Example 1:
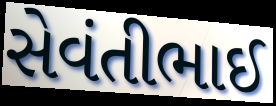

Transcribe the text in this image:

સેવંતીભાઈ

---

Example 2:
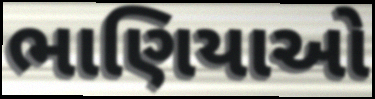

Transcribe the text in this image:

ભાણિયાઓ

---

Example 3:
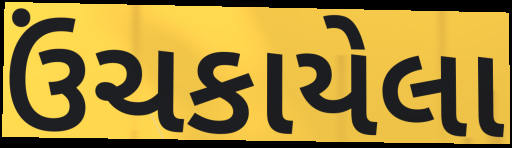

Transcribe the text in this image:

ઉંચકાયેલા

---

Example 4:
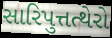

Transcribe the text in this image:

સારિપુત્તત્થેરો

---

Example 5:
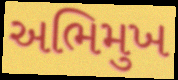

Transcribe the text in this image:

અભિમુખ